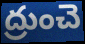
ద్రుంచె